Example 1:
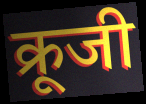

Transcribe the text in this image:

क्रूजी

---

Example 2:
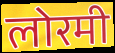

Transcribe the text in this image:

लोरमी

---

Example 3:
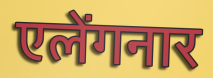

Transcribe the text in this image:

एलेंगनार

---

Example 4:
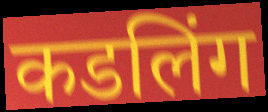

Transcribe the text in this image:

कडलिंग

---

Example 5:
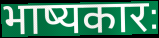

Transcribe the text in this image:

भाष्यकारः